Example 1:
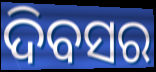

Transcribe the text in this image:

ଦିବସର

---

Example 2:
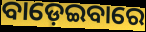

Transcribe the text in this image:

ବାଡ଼େଇବାରେ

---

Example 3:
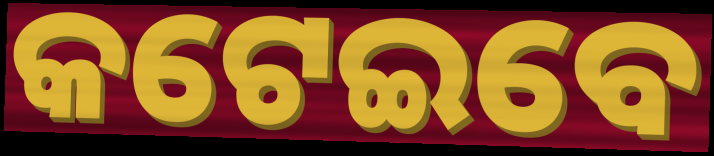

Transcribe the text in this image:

କଟେଇବେ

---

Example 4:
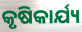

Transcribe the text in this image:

କୃଷିକାର୍ଯ୍ୟ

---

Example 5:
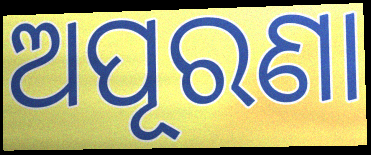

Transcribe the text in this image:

ଅପୂରଣା